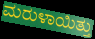
ಮರುಳಾಯಿತ್ತು